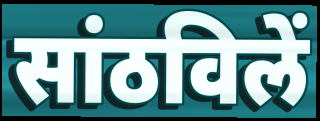
सांठविलें